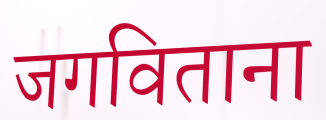
जगविताना